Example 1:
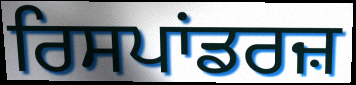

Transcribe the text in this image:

ਰਿਸਪਾਂਡਰਜ਼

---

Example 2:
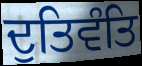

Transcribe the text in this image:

ਦੁਤਿਵੰਤਿ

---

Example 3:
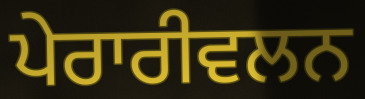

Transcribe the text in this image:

ਪੇਰਾਰੀਵਲਨ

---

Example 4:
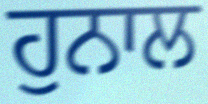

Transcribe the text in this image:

ਹੁਨਾਲ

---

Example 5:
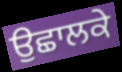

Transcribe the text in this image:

ਉਛਾਲਕੇ